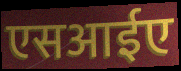
एसआईए